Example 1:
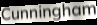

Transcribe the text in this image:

Cunningham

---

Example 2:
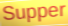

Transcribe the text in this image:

Supper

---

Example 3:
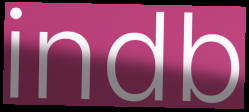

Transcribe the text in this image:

indb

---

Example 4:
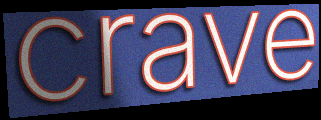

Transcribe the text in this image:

crave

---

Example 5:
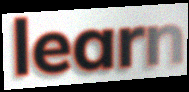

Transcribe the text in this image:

learn